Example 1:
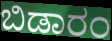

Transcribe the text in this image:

ಬಿಡಾರಂ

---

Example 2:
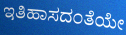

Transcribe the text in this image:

ಇತಿಹಾಸದಂತೆಯೇ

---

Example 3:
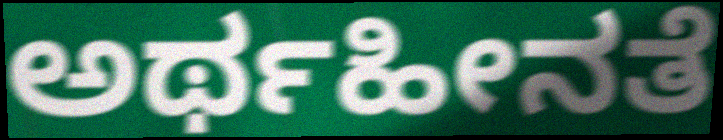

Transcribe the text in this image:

ಅರ್ಥಹೀನತೆ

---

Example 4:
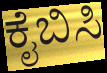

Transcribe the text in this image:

ಕೈಬಿಸಿ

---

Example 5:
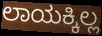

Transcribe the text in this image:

ಲಾಯಕ್ಕಿಲ್ಲ